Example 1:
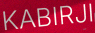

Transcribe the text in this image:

KABIRJI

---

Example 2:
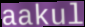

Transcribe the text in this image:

aakul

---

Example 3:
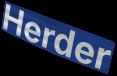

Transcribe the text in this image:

Herder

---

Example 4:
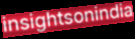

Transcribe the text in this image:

insightsonindia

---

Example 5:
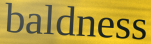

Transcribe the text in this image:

baldness